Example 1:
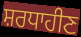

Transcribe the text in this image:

ਸ਼ਰਧਾਹੀਣ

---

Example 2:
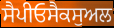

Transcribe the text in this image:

ਸੈਪੀਓਸੈਕਸੁਅਲ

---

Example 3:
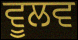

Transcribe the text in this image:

ਵੂਲਵ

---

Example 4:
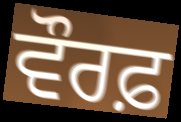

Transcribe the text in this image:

ਵੌਰਫ਼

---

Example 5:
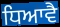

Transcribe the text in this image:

ਧਿਆਵੈ